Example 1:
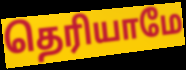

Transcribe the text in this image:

தெரியாமே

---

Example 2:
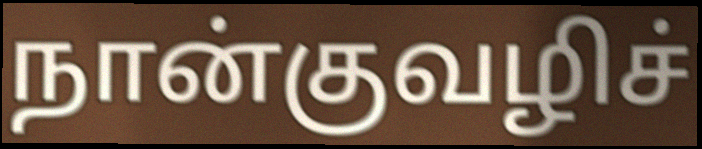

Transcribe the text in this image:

நான்குவழிச்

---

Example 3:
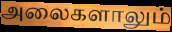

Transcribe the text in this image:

அலைகளாலும்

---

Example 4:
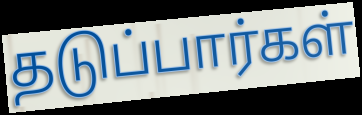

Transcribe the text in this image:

தடுப்பார்கள்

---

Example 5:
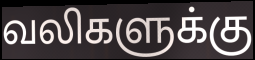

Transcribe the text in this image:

வலிகளுக்கு